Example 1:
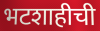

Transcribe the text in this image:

भटशाहीची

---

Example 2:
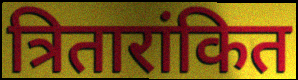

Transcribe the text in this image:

त्रितारांकित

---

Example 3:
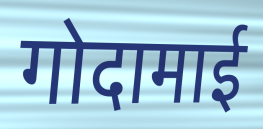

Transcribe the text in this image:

गोदामाई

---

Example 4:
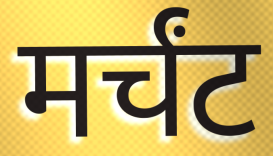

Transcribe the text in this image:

मर्चंट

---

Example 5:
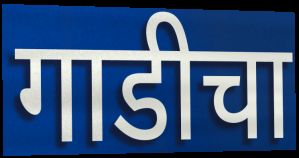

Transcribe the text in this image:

गाडीचा